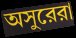
অসুরেরা